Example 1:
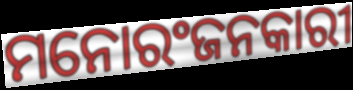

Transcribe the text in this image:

ମନୋରଂଜନକାରୀ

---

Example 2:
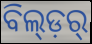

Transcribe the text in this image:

ବିଲ୍ଡ଼ର୍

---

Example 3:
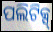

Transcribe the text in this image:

ପଲିଟିକ୍ସ୍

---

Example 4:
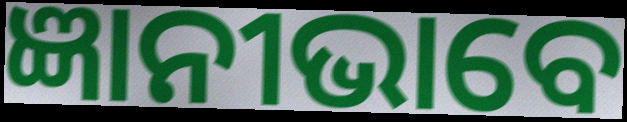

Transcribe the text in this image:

ଜ୍ଞାନୀଭାବେ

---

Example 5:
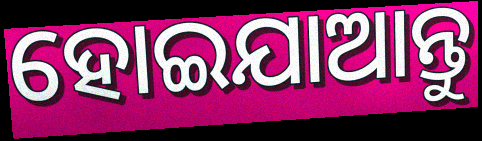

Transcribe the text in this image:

ହୋଇଯାଆନ୍ତୁ